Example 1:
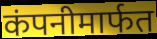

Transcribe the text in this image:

कंपनीमार्फत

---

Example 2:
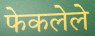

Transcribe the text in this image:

फेकलेले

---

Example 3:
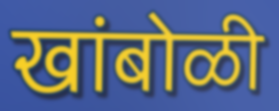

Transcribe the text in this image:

खांबोळी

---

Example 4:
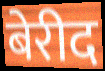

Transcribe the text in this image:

बेरीद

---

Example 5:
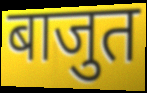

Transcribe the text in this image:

बाजुत